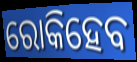
ରୋକିହେବ